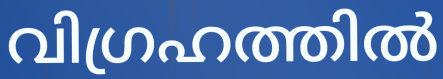
വിഗ്രഹത്തിൽ